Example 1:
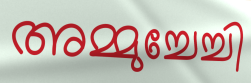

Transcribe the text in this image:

അമ്മുച്ചേച്ചി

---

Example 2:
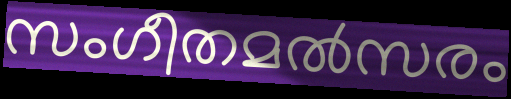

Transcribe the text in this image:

സംഗീതമൽസരം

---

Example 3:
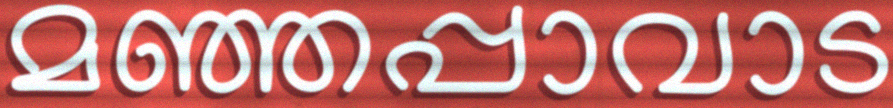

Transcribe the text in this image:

മഞ്ഞപ്പാവാട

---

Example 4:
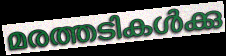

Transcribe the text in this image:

മരത്തടികൾക്കു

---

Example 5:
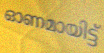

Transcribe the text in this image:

ഓണമായിട്ട്